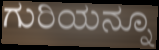
ಗುರಿಯನ್ನೂ